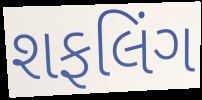
શફલિંગ